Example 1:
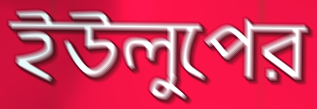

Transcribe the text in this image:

ইউলুপের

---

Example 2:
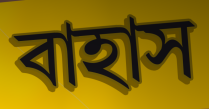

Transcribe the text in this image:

বাহাস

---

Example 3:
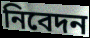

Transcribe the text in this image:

নিবেদন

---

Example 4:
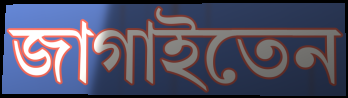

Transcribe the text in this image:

জাগাইতেন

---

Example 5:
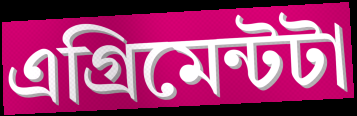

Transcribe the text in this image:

এগ্রিমেন্টটা